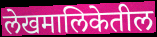
लेखमालिकेतील